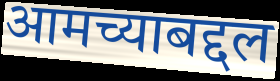
आमच्याबद्दल